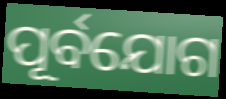
ପୂର୍ବଯୋଗ